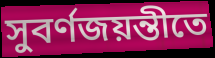
সুবর্ণজয়ন্তীতে